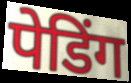
पेडिंग